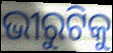
ଭୀରୁଟିକୁ